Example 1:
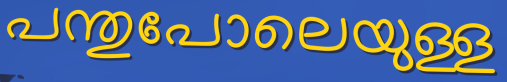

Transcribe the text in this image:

പന്തുപോലെയുള്ള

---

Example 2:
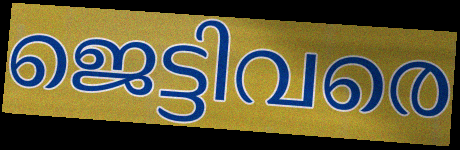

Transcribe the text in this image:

ജെട്ടിവരെ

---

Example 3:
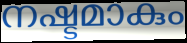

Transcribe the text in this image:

നഷ്ടമാകും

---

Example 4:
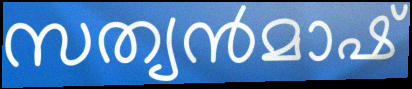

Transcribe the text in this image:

സത്യൻമാഷ്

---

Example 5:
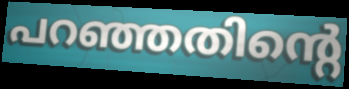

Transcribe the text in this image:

പറഞ്ഞതിന്റെ